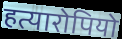
हत्यारोपियो